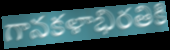
గానకళాభిరతికి